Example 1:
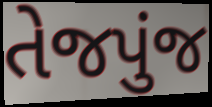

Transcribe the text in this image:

તેજપુંજ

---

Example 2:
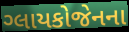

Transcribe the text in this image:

ગ્લાયકોજેનના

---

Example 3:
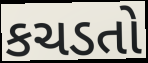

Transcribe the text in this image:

કચડતો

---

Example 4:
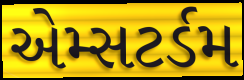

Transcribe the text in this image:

એમ્સટર્ડમ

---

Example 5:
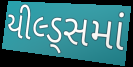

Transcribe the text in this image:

યીલ્ડ્સમાં